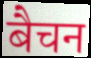
बैचन